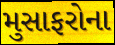
મુસાફરોના